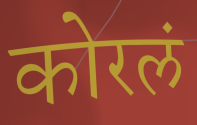
कोरलं